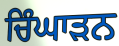
ਚਿੰਘਾੜਨ